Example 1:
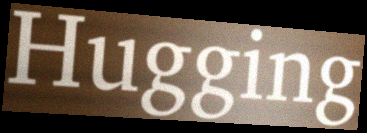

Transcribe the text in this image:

Hugging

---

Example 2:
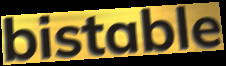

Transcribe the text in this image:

bistable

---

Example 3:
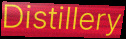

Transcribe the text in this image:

Distillery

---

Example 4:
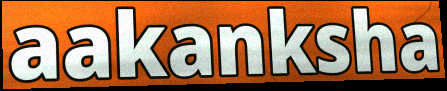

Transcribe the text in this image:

aakanksha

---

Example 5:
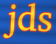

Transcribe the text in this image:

jds